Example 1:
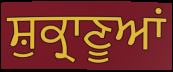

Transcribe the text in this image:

ਸ਼ੁਕ੍ਰਾਣੂਆਂ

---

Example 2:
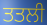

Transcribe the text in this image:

ਤਤਲੀ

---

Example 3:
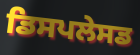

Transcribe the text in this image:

ਡਿਸਪਲੇਸਡ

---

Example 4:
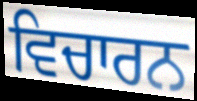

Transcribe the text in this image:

ਵਿਚਾਰਨ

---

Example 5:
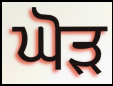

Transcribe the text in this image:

ਘੋੜ